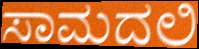
ಸಾಮದಲಿ